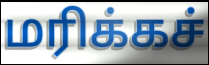
மரிக்கச்